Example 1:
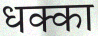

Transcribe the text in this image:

धक्का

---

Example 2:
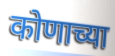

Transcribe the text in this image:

कोणाच्या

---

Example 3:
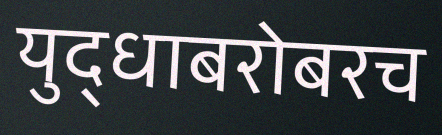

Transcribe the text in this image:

युद्धाबरोबरच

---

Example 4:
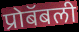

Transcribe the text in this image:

प्रोबॅबली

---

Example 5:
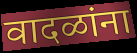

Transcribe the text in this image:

वादळांना